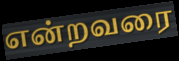
என்றவரை